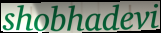
shobhadevi